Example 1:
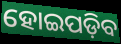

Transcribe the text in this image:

ହୋଇପଡ଼ିବ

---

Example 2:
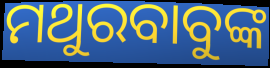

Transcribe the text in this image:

ମଥୁରବାବୁଙ୍କ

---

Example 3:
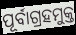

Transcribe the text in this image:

ପୂର୍ବାଗ୍ରହମୁକ୍ତ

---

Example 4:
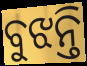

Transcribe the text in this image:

ବୁଝନ୍ତି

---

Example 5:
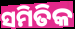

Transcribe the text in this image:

ସମିତିକ